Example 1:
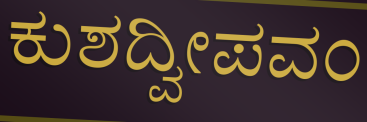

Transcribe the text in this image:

ಕುಶದ್ವೀಪವಂ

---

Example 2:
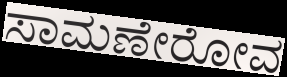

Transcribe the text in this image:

ಸಾಮಣೇರೋವ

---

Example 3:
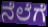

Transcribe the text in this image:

ನೆಲೆಗೆ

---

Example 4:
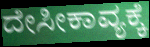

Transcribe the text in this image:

ದೇಸೀಕಾವ್ಯಕ್ಕೆ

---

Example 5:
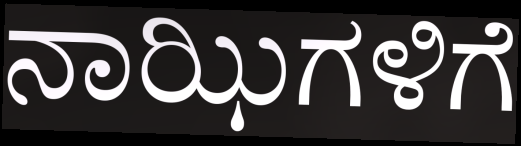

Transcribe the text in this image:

ನಾಝಿಗಳಿಗೆ